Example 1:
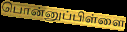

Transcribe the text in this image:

பொன்னுப்பிள்ளை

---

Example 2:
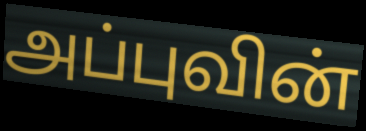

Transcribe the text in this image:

அப்புவின்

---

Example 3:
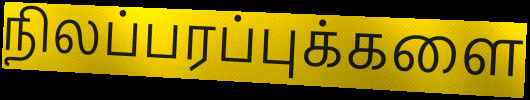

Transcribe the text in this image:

நிலப்பரப்புக்களை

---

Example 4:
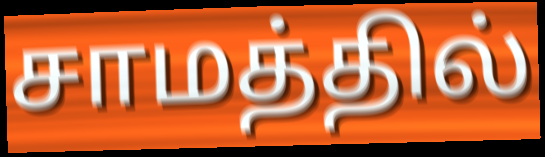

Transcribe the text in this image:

சாமத்தில்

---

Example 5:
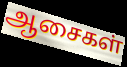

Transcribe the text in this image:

ஆசைகள்